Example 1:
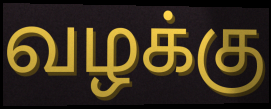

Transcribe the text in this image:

வழக்கு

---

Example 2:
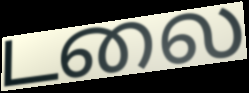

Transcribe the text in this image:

டலை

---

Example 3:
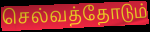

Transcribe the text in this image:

செல்வத்தோடும்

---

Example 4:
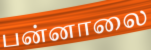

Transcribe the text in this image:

பன்னாலை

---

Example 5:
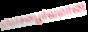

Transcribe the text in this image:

விமர்சனபூர்வமான